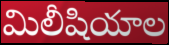
మిలీషియాల